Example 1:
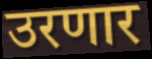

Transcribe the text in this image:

उरणार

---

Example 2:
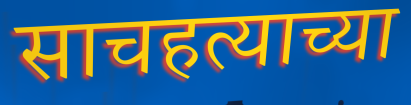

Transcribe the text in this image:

साचहत्याच्या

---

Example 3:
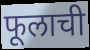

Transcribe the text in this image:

फूलाची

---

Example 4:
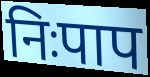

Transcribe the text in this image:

निःपाप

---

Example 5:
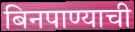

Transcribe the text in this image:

बिनपाण्याची